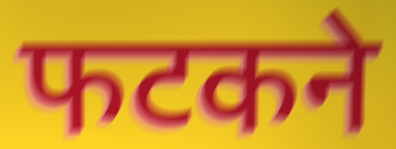
फटकने